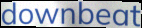
downbeat